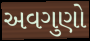
અવગુણો